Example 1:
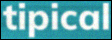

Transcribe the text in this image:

tipical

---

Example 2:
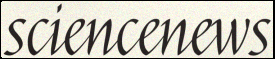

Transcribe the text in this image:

sciencenews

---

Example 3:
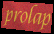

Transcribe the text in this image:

prolap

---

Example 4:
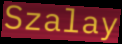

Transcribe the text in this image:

Szalay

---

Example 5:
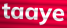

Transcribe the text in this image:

taaye